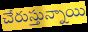
చేరుస్తున్నాయి